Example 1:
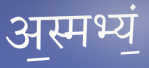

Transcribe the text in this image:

अ॒स्मभ्यं॒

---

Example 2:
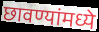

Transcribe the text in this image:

छावण्यांमध्ये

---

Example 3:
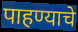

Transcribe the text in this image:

पाहण्याचे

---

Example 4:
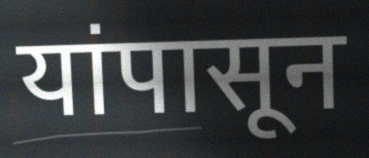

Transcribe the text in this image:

यांपासून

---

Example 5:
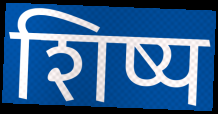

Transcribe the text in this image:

शिष्य